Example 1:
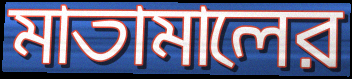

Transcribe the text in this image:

মাতামালের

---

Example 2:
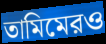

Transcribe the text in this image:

তামিমেরও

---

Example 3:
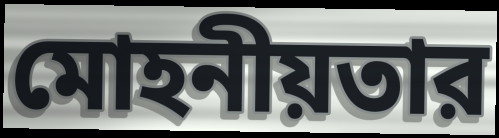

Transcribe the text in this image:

মোহনীয়তার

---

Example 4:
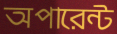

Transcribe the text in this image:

অপারেন্ট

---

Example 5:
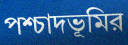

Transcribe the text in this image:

পশ্চাদভূমির